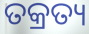
ତକ୍ରତ୍ୟ